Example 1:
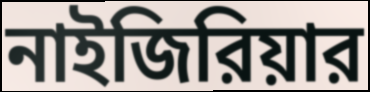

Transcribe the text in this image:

নাইজিরিয়ার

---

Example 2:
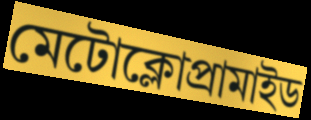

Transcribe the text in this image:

মেটোক্লোপ্রামাইড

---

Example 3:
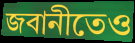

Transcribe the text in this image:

জবানীতেও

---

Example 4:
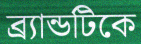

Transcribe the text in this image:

ব্র্যান্ডটিকে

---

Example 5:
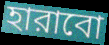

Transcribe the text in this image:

হারাবো